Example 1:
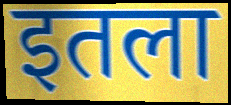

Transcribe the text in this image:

इतला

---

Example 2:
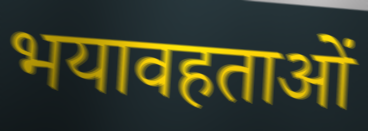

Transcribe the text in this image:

भयावहताओं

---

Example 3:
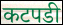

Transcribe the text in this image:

कटपडी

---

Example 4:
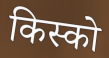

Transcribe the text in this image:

किस्को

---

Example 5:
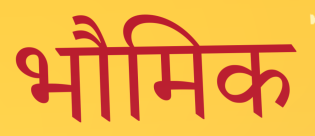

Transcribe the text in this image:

भौमिक